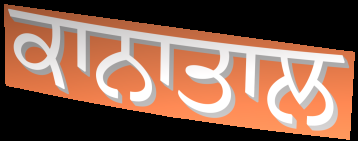
ਕਾਨਾਤਾਲ